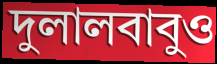
দুলালবাবুও